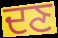
ਦਣ